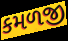
કમળજી